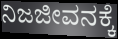
ನಿಜಜೀವನಕ್ಕೆ